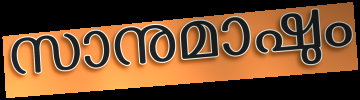
സാനുമാഷും